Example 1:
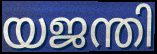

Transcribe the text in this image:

യജന്തി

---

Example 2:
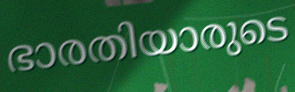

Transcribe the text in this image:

ഭാരതിയാരുടെ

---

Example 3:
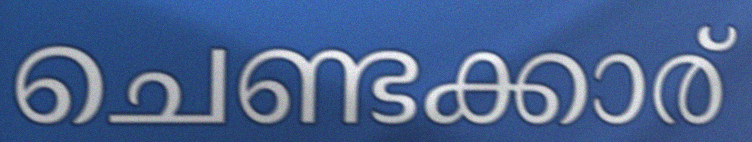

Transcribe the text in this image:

ചെണ്ടക്കാര്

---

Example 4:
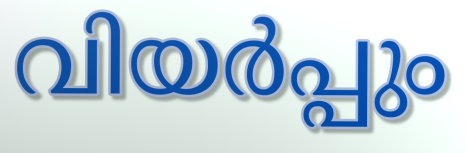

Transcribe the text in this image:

വിയർപ്പും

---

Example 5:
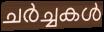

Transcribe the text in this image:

ചർച്ചകൾ